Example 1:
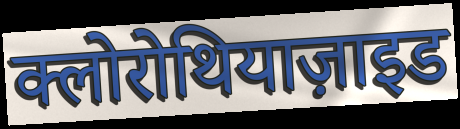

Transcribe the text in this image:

क्लोरोथियाज़ाइड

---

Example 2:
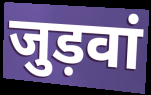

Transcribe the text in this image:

जुड़वां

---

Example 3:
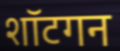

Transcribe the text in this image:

शॉटगन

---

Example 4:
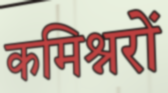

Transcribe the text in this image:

कमिश्नरों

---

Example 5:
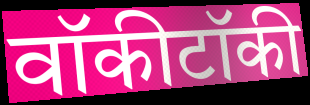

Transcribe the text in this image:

वॉकीटॉकी